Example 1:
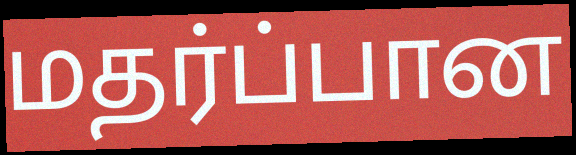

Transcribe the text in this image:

மதர்ப்பான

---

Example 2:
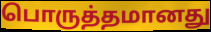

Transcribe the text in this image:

பொருத்தமானது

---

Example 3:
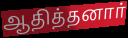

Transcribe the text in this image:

ஆதித்தனார்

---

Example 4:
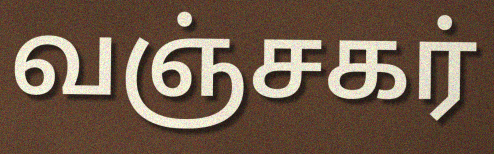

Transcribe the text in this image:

வஞ்சகர்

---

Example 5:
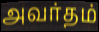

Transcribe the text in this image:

அவர்தம்